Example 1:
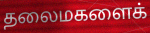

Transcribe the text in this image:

தலைமகளைக்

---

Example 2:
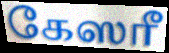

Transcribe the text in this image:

கேஸரீ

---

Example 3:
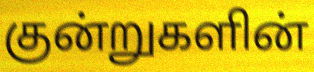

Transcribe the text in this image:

குன்றுகளின்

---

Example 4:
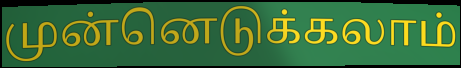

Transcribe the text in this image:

முன்னெடுக்கலாம்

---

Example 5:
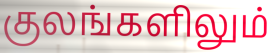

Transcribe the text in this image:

குலங்களிலும்